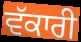
ਵੱਕਾਰੀ